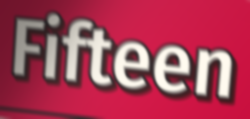
Fifteen